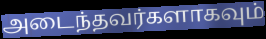
அடைந்தவர்களாகவும்